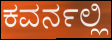
ಕವರ್ನಲ್ಲಿ